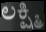
ಲಕ್ಷ್ಮಿ